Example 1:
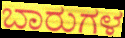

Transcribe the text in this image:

ಬಾರುಗಳ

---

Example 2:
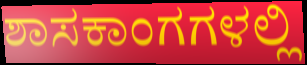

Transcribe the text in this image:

ಶಾಸಕಾಂಗಗಳಲ್ಲಿ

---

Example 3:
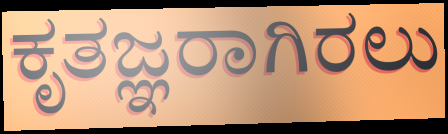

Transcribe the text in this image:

ಕೃತಜ್ಞರಾಗಿರಲು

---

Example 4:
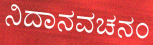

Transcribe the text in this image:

ನಿದಾನವಚನಂ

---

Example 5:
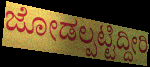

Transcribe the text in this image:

ಜೋಡಲ್ಪಟ್ಟಿದ್ದೀರಿ